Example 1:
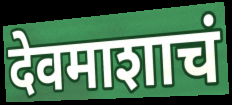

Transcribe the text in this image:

देवमाशाचं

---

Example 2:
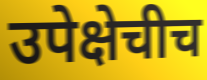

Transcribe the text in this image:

उपेक्षेचीच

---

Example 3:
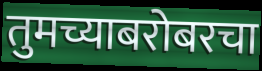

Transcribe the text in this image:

तुमच्याबरोबरचा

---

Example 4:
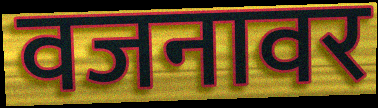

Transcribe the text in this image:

वजनावर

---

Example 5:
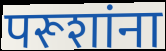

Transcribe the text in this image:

परूशांना